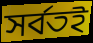
সর্বতই